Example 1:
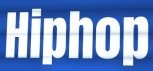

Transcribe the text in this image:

Hiphop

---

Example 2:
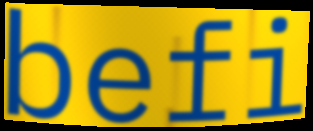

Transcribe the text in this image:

befi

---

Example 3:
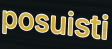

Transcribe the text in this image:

posuisti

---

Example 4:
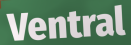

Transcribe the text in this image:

Ventral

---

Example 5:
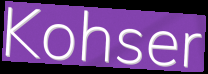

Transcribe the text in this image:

Kohser